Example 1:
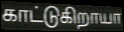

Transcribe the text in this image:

காட்டுகிறாயா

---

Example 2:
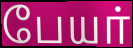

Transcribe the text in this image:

பேயர்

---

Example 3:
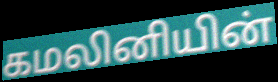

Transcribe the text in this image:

கமலினியின்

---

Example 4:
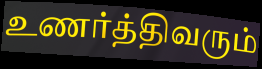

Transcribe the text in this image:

உணர்த்திவரும்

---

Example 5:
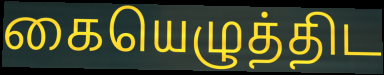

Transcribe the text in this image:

கையெழுத்திட